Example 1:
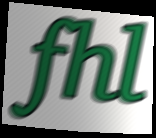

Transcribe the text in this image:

fhl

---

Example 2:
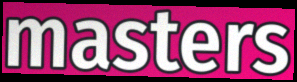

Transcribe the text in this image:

masters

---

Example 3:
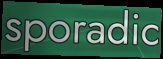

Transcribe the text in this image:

sporadic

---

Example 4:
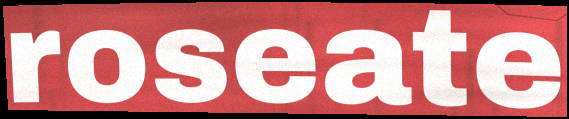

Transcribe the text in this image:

roseate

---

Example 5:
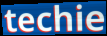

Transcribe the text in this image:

techie